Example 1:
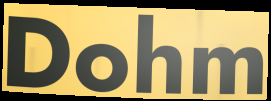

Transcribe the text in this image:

Dohm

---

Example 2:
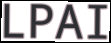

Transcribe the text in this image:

LPAI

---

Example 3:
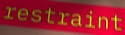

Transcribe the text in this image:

restraint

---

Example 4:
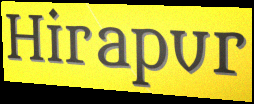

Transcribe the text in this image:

Hirapur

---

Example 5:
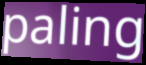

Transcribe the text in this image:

paling